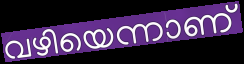
വഴിയെന്നാണ്